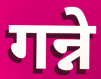
गन्ने